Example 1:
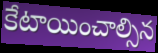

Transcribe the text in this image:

కేటాయించాల్సిన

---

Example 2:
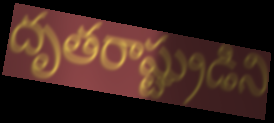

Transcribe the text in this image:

దృతరాష్ట్రుడిని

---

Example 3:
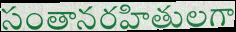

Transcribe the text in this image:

సంతానరహితులగా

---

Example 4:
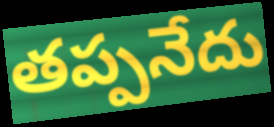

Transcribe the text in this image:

తప్పనేదు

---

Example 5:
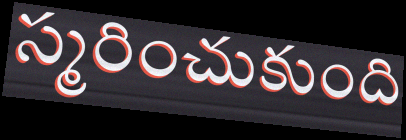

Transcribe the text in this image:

స్మరించుకుంది